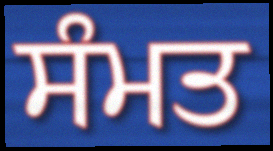
ਸੰਮਤ